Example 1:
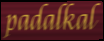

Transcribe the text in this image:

padalkal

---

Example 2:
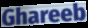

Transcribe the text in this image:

Ghareeb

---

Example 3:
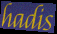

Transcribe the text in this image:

hadis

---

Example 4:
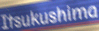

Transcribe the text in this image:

Itsukushima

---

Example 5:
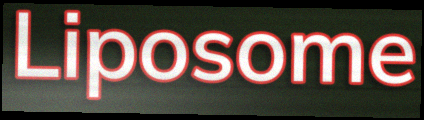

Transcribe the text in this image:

Liposome